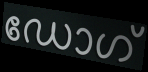
ഡോഗ്